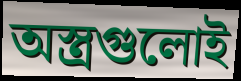
অস্ত্রগুলোই